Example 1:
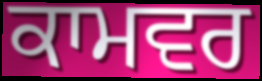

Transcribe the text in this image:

ਕਾਮਵਰ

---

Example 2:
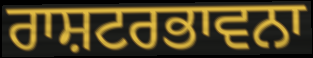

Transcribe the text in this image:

ਰਾਸ਼ਟਰਭਾਵਨਾ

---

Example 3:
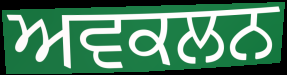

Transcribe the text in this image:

ਅਵਕਲਨ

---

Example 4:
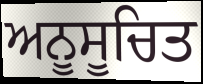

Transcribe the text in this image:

ਅਨੂਸੂਚਿਤ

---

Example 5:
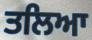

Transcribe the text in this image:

ਤਲਿਆ